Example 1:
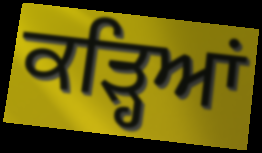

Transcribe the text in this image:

ਕੜ੍ਹਿਆਂ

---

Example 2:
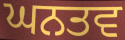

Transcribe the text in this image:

ਘਨਤਵ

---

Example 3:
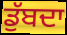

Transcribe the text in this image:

ਡੁੱਬਦਾ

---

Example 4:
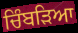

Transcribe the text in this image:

ਚਿੰਬੜਿਆ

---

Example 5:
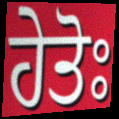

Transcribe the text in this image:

ਹੇਤੋਃ